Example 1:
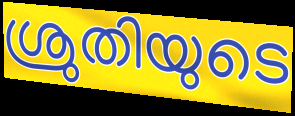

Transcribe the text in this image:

ശ്രുതിയുടെ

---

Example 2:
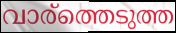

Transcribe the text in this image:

വാര്ത്തെടുത്ത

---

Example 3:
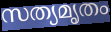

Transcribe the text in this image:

സത്യമൃതം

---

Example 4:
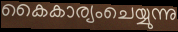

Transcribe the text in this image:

കൈകാര്യംചെയ്യുന്നു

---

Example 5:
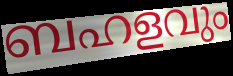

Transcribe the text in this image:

ബഹളവും